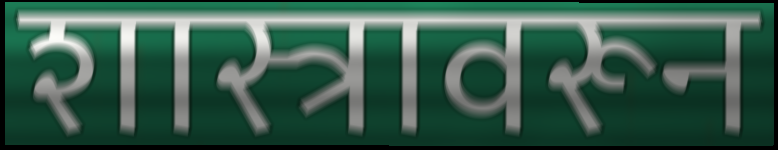
शास्त्रावरून